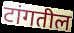
टांगतील